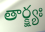
తార్క్ష్యః